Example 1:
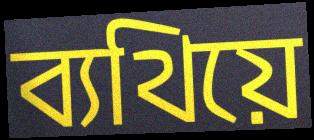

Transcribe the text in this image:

ব্যথিয়ে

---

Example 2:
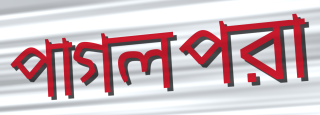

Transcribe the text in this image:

পাগলপরা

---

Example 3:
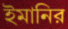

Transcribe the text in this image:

ইমানির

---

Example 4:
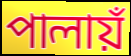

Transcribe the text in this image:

পালায়ঁ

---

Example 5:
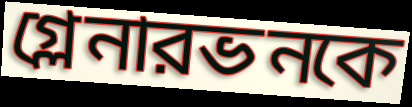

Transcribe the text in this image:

গ্লেনারভনকে